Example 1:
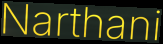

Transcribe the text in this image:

Narthani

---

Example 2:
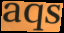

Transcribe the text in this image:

aqs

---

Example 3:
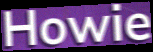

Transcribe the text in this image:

Howie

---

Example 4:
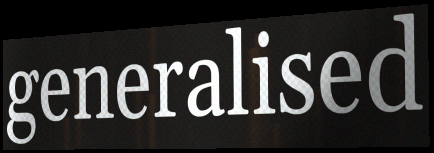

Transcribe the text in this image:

generalised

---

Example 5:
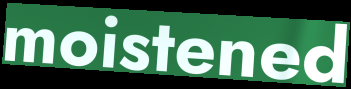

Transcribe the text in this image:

moistened